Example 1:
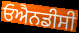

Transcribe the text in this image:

ਓਐਨਡੀਸੀ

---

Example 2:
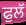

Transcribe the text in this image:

ਫੁਲੱ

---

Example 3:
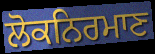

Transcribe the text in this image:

ਲੋਕਨਿਰਮਾਣ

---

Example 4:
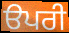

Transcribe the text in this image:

ੳਪਰੀ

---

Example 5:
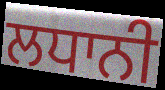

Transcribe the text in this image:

ਲਧਾਨੀ